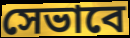
সেভাবে